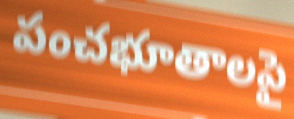
పంచభూతాలపై